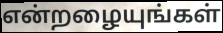
என்றழையுங்கள்